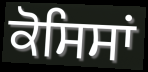
ਕੋਸਿਸਾਂ